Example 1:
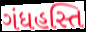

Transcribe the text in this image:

ગંધહસ્તિ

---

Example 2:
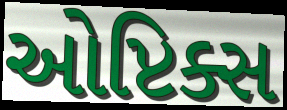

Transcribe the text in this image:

ઓપ્ટિક્સ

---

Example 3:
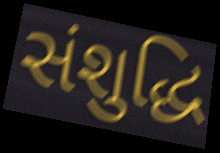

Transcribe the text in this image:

સંશુદ્ધિ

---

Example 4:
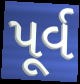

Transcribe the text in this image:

પૂર્વ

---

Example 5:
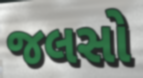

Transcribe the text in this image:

જલસો